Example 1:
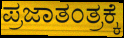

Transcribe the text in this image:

ಪ್ರಜಾತಂತ್ರಕ್ಕೆ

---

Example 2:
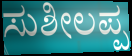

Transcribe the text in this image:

ಸುಶೀಲಪ್ಪ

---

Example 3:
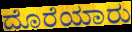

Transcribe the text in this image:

ದೊರೆಯಾರು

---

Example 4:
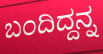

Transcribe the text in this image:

ಬಂದಿದ್ದನ್ನ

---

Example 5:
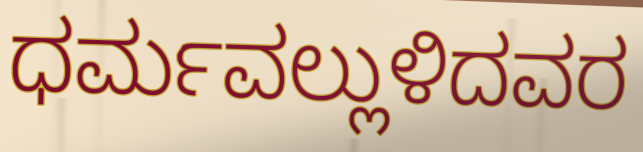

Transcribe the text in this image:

ಧರ್ಮವಲ್ಲುಳಿದವರ